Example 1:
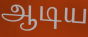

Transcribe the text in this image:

ஆடிய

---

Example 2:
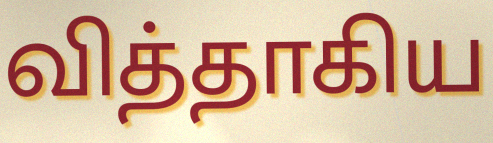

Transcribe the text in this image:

வித்தாகிய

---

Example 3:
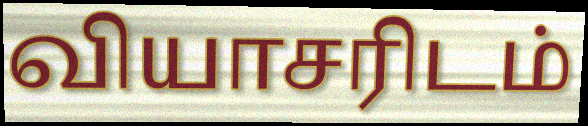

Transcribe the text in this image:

வியாசரிடம்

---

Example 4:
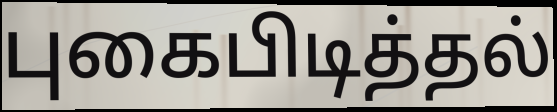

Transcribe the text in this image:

புகைபிடித்தல்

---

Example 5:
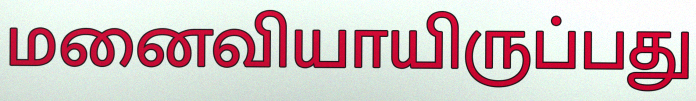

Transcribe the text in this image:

மனைவியாயிருப்பது